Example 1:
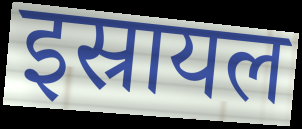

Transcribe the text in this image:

इस्रायल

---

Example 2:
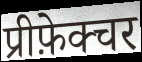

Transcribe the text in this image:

प्रीफ़ेक्चर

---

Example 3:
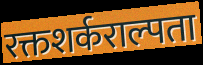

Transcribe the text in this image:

रक्तशर्कराल्पता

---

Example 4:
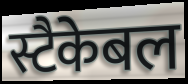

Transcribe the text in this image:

स्टैकेबल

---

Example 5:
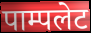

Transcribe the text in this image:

पाम्पलेट